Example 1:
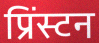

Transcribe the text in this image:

प्रिंस्टन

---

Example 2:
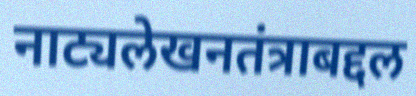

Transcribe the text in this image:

नाट्यलेखनतंत्राबद्दल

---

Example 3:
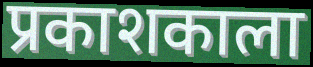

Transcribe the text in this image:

प्रकाशकाला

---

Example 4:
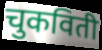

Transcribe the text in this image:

चुकविती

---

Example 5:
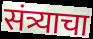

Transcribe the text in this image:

संत्र्याचा